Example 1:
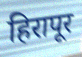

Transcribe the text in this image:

हिरापूर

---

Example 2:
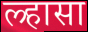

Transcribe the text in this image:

ल्हासा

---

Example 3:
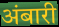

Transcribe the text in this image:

अंबारी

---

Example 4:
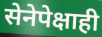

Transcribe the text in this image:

सेनेपेक्षाही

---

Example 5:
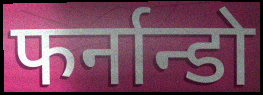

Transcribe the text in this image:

फर्नान्डो